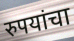
रुपयांचा